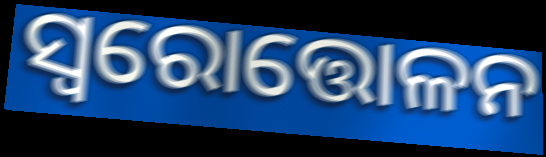
ସ୍ବରୋତ୍ତୋଳନ